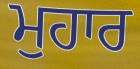
ਮੁਹਾਰ